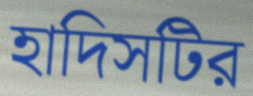
হাদিসটির